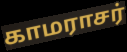
காமராசர்